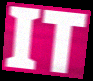
IT